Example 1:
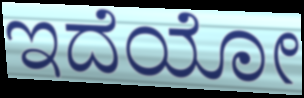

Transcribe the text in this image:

ಇದೆಯೋ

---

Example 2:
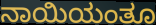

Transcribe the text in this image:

ನಾಯಿಯಂತೂ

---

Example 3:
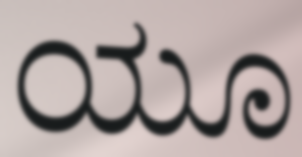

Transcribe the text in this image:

ಯೂ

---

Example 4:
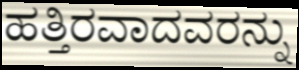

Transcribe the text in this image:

ಹತ್ತಿರವಾದವರನ್ನು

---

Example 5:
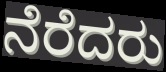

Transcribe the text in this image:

ನೆರೆದರು